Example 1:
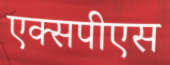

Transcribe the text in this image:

एक्सपीएस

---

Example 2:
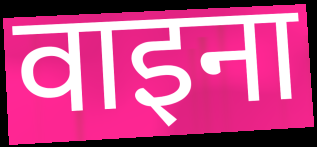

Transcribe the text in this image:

वाइना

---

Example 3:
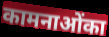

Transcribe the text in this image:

कामनाओंका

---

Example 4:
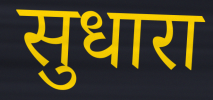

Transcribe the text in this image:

सुधारा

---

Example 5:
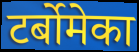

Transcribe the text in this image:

टर्बोमेका